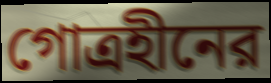
গোত্রহীনের